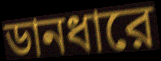
ডানধারে